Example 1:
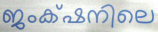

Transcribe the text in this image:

ജംക്‌ഷനിലെ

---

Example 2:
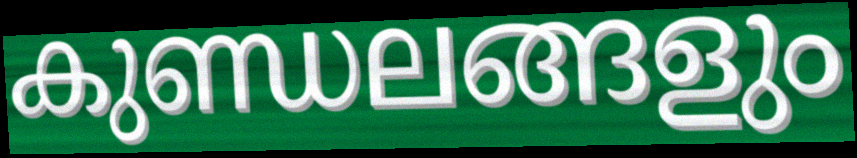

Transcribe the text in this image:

കുണ്ഡലങ്ങളും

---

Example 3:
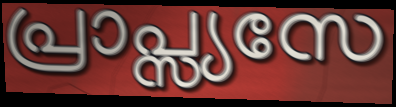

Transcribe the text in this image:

പ്രാപ്സ്യസേ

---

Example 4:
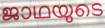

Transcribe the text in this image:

ജാഥയുടെ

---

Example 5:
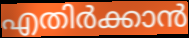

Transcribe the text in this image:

എതിർക്കാൻ